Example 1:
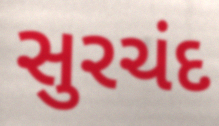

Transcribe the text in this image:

સુરચંદ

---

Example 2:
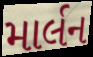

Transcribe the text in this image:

માર્લન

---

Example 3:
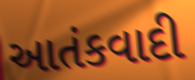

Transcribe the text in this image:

આતંકવાદી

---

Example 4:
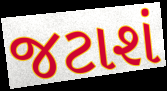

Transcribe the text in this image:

જટાશં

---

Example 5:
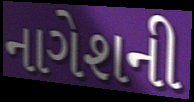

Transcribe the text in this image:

નાગેશની